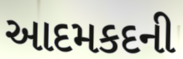
આદમકદની